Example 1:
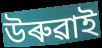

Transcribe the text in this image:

উৰুৱাই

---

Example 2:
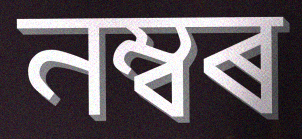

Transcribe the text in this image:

নম্বৰ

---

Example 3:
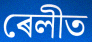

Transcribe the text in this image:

ৰেলীত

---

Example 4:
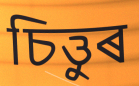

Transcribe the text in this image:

চিত্তুৰ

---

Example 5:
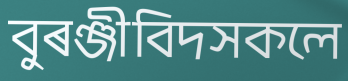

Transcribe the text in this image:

বুৰঞ্জীবিদসকলে